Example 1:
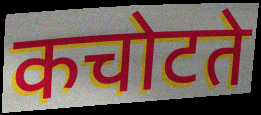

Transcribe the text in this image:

कचोटते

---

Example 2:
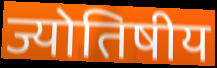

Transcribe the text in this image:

ज्योतिषीय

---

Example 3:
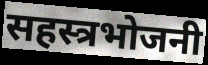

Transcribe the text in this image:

सहस्त्रभोजनी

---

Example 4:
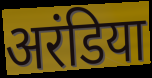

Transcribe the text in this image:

अरंडिया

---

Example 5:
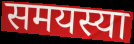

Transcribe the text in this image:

समयस्या